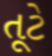
તૂટે